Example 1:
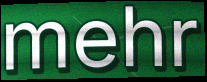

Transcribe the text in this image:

mehr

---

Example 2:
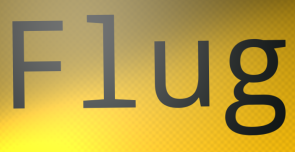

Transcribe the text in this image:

Flug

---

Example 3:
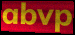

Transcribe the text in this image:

abvp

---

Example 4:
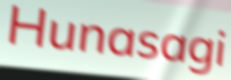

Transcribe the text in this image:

Hunasagi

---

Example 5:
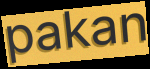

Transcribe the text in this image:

pakan